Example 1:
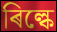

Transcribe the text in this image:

ৰিল্কে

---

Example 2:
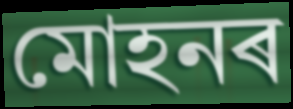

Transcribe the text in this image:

মোহনৰ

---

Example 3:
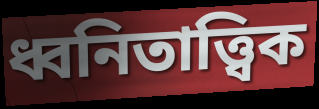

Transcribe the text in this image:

ধ্বনিতাত্ত্বিক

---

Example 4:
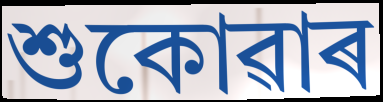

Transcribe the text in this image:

শুকোৱাৰ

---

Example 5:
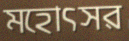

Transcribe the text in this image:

মহোৎসৱ